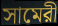
সামেরী